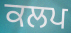
ਕਲਪ